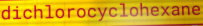
dichlorocyclohexane